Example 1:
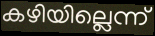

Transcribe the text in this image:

കഴിയില്ലെന്ന്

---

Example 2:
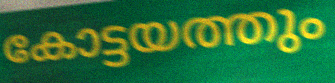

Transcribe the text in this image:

കോട്ടയത്തും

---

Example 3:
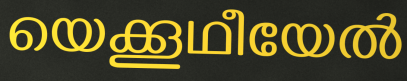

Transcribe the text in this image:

യെക്കൂഥീയേൽ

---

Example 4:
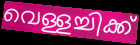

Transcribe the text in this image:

വെള്ളച്ചിക്ക്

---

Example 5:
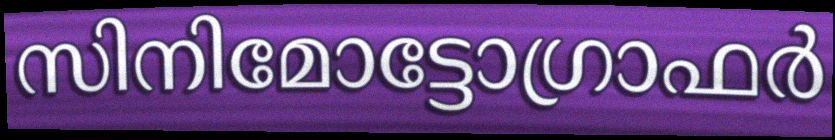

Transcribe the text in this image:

സിനിമോട്ടോഗ്രാഫർ